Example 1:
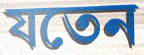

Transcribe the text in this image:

যতেন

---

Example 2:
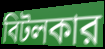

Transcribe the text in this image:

বিটলকার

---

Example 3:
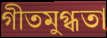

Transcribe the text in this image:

গীতমুগ্ধতা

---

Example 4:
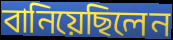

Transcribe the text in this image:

বানিয়েছিলেন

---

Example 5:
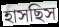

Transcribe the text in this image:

হাসছিস